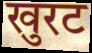
खुरट